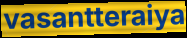
vasantteraiya